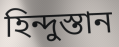
হিন্দুস্তান